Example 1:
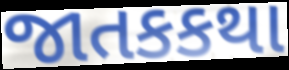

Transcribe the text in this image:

જાતકકથા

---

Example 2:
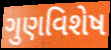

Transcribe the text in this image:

ગુણવિશેષ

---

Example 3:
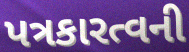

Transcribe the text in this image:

પત્રકારત્વની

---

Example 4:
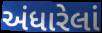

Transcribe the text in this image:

અંધારેલાં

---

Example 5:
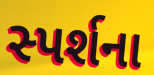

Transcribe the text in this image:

સ્પર્શના